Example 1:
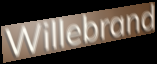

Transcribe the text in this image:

Willebrand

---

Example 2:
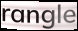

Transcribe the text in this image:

rangle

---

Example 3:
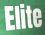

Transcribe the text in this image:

Elite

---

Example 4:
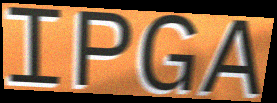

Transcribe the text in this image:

IPGA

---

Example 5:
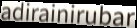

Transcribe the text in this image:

adirainirubar